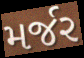
મર્જર